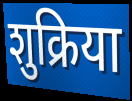
शुक्रिया